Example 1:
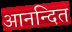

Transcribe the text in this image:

आनन्दित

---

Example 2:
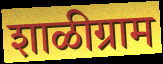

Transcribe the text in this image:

शाळीग्राम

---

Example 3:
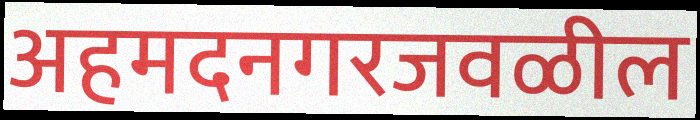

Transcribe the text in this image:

अहमदनगरजवळील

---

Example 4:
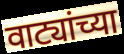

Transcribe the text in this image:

वाट्यांच्या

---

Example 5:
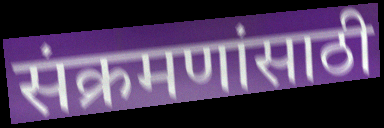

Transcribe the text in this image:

संक्रमणांसाठी